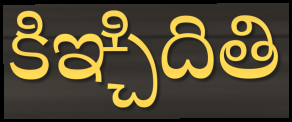
కిఞ్చిదితి